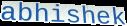
abhishek